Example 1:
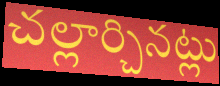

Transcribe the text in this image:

చల్లార్చినట్లు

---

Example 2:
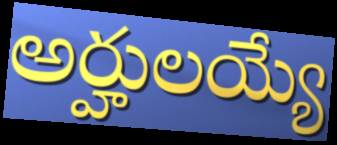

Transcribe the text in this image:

అర్హులయ్యే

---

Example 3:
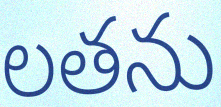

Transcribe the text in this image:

లతను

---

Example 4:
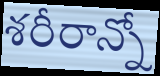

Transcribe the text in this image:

శరీరాన్నో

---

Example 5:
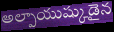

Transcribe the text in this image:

అల్పాయుష్కుడైన